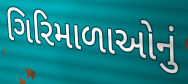
ગિરિમાળાઓનું